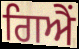
ਗਿਐਂ